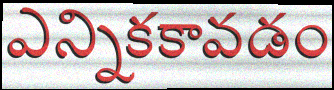
ఎన్నికకావడం